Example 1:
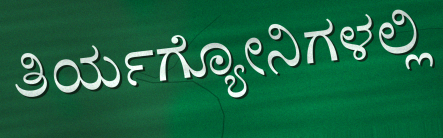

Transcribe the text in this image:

ತಿರ್ಯಗ್ಯೋನಿಗಳಲ್ಲಿ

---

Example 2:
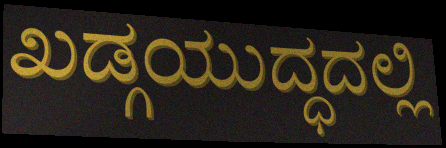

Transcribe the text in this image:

ಖಡ್ಗಯುದ್ಧದಲ್ಲಿ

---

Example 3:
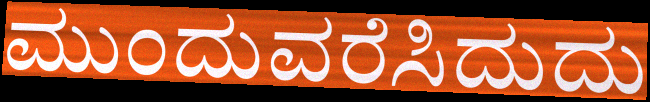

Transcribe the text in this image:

ಮುಂದುವರೆಸಿದುದು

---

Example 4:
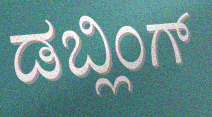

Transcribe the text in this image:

ಡಬ್ಲಿಂಗ್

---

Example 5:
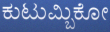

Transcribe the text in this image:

ಕುಟುಮ್ಬಿಕೋ